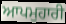
ਆਪਮੁਹਾਰੀ